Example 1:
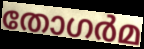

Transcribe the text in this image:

തോഗർമ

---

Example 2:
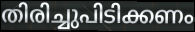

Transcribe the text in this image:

തിരിച്ചുപിടിക്കണം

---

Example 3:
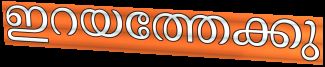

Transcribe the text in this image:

ഇറയത്തേക്കു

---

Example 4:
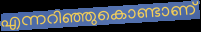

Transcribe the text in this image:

എന്നറിഞ്ഞുകൊണ്ടാണ്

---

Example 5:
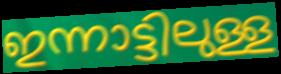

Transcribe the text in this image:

ഇന്നാട്ടിലുള്ള